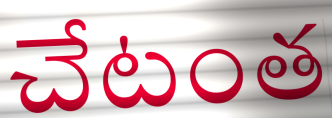
చేటంత